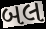
બલ